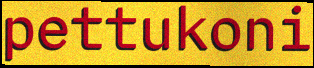
pettukoni